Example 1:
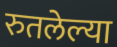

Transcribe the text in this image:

रुतलेल्या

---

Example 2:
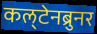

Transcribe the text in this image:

कल्टेनब्रुनर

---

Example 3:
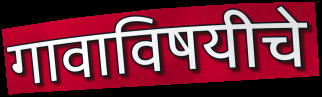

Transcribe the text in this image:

गावाविषयीचे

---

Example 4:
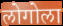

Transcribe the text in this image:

लोगोला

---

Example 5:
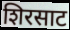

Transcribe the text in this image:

शिरसाट